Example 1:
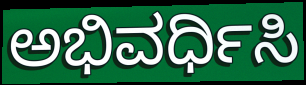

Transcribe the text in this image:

ಅಭಿವರ್ಧಿಸಿ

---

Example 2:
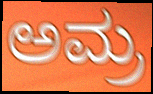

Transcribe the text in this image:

ಅಮ್ರ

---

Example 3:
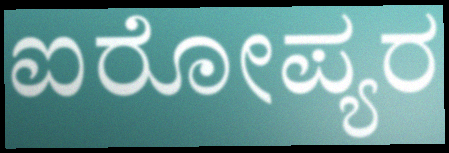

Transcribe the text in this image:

ಐರೋಪ್ಯರ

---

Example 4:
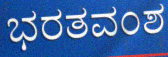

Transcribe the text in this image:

ಭರತವಂಶ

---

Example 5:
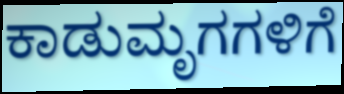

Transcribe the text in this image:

ಕಾಡುಮೃಗಗಳಿಗೆ